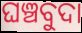
ଘଞ୍ଚବୁଦା